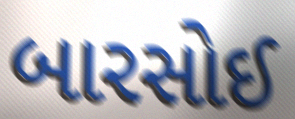
બારસોઈ